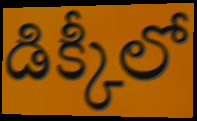
డిక్కీలో